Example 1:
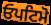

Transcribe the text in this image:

ਓਪਟਿਮੋ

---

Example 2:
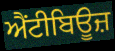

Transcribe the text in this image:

ਐਂਟੀਬਿਊਜ਼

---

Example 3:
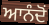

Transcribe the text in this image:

ਆਨੰਦੋਂ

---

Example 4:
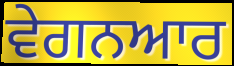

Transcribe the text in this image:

ਵੇਗਨਆਰ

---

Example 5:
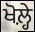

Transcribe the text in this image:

ਖੋਲ਼੍ਹੇ